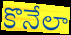
కొనేలా